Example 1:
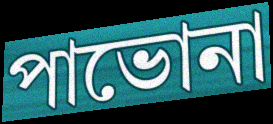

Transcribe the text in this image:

পাভোনা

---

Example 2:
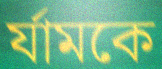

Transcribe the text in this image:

র্যামকে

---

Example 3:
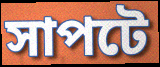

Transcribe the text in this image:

সাপটে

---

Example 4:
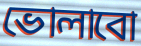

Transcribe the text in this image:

ভোলাবো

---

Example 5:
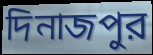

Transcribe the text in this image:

দিনাজপুর